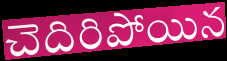
చెదిరిపోయిన